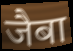
जैबा